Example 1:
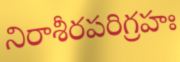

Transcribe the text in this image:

నిరాశీరపరిగ్రహః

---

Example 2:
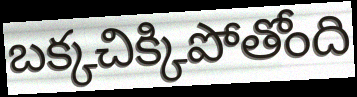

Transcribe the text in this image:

బక్కచిక్కిపోతోంది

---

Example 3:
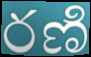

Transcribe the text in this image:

రణి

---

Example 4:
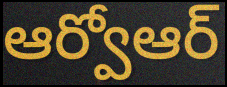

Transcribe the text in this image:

ఆర్వోఆర్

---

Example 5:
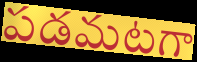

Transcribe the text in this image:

పడమటగా